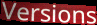
Versions